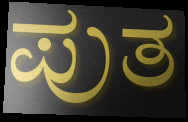
ಪುತ